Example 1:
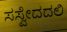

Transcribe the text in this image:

ಸಸ್ವೇದದಲಿ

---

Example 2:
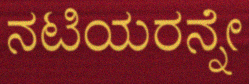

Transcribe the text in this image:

ನಟಿಯರನ್ನೇ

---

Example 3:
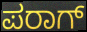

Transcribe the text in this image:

ಪರಾಗ್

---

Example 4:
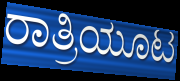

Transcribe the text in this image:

ರಾತ್ರಿಯೂಟ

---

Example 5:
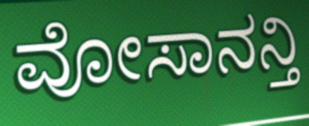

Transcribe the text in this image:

ವೋಸಾನನ್ತಿ